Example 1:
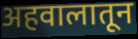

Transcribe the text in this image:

अहवालातून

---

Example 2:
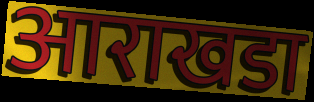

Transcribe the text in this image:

आराखडा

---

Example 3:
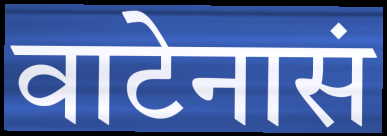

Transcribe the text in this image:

वाटेनासं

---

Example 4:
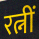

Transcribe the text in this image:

रत्नीं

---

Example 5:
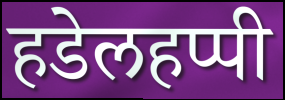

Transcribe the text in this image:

हडेलहप्पी